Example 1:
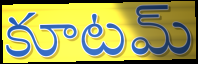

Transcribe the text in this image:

కూటమ్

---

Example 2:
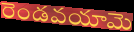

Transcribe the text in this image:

రెండవయామె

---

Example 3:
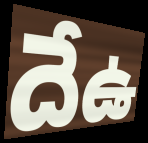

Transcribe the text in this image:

దేఉ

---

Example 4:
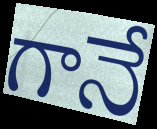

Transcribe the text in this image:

గానే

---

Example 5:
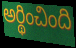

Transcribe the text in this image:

అర్థించింది